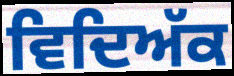
ਵਿਦਿਅੱਕ